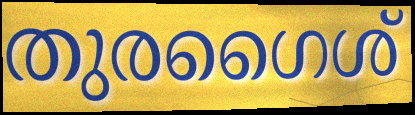
തുരഗൈശ്